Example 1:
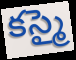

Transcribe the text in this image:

కస్మై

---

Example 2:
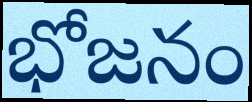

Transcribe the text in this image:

భోజనం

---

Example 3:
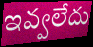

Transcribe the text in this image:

ఇవ్వలేదు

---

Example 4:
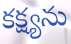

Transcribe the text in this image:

కక్ష్యను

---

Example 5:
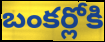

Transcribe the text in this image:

బంకర్లోకి